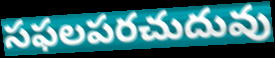
సఫలపరచుదువు